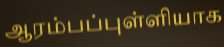
ஆரம்பப்புள்ளியாக